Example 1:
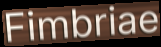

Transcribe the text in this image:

Fimbriae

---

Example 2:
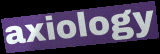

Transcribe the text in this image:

axiology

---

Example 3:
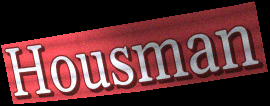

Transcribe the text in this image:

Housman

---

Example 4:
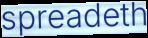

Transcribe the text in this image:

spreadeth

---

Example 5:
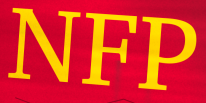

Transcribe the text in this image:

NFP